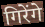
गिरेंगे